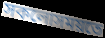
সকলোসময়তে